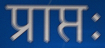
प्राप्तः